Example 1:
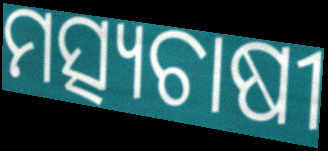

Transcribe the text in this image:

ମତ୍ସ୍ୟଚାଷୀ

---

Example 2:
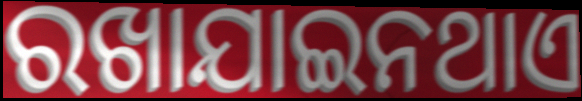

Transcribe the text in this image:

ରଖାଯାଇନଥାଏ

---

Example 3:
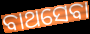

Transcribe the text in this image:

ବାଥସେବା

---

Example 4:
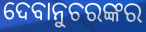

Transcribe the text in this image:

ଦେବାନୁଚରଙ୍କର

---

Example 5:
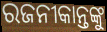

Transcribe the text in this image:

ରଜନୀକାନ୍ତଙ୍କୁ